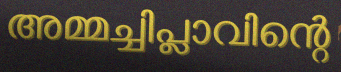
അമ്മച്ചിപ്ലാവിന്റെ